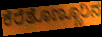
ಕೆರೆತೊಣ್ಣೂರಿನ